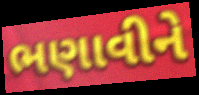
ભણાવીને